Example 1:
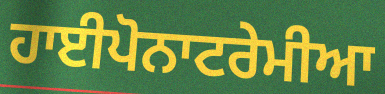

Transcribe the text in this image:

ਹਾਈਪੋਨਾਟਰੇਮੀਆ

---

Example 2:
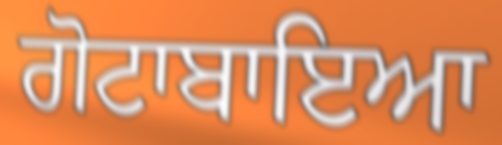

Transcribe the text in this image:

ਗੋਟਾਬਾਇਆ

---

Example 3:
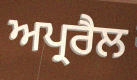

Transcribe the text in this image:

ਅਪ੍ਰਰੈਲ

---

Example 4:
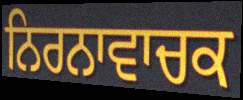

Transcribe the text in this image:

ਨਿਰਨਾਵਾਚਕ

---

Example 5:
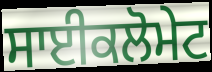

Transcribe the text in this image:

ਸਾਈਕਲੋਮੇਟ